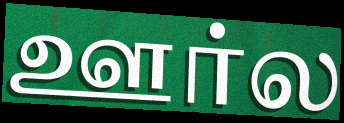
ஊர்ல